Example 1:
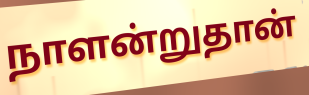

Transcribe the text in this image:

நாளன்றுதான்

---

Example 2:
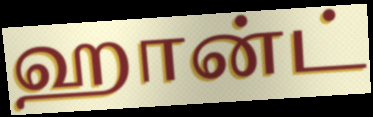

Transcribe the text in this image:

ஹான்ட்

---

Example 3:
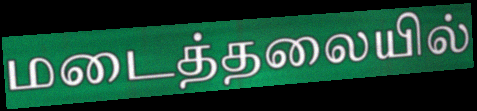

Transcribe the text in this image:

மடைத்தலையில்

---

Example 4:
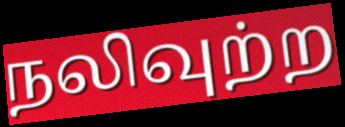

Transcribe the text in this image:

நலிவுற்ற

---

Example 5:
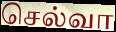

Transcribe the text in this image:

செல்வா